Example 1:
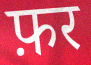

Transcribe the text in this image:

फ़र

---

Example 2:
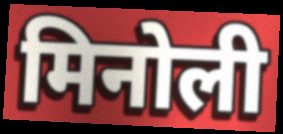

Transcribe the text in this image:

मिनोली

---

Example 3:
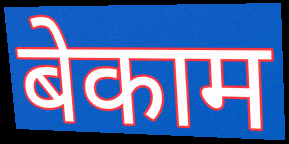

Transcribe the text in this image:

बेकाम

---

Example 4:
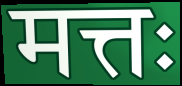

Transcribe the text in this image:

मत्तः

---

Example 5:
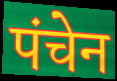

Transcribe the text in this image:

पंचेन